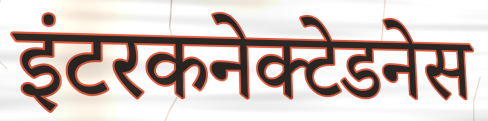
इंटरकनेक्टेडनेस